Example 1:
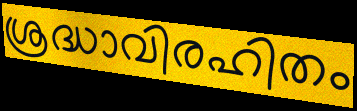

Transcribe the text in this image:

ശ്രദ്ധാവിരഹിതം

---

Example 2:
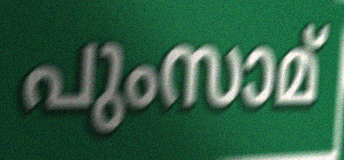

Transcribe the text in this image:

പുംസാമ്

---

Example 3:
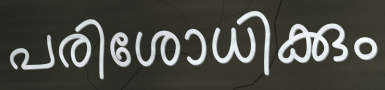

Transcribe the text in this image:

പരിശോധിക്കും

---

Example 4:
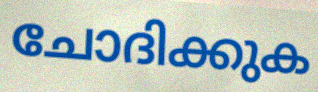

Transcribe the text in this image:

ചോദിക്കുക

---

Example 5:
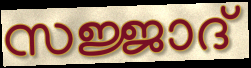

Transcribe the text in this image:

സജ്ജാദ്